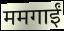
ममगाईं